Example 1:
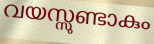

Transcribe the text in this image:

വയസ്സുണ്ടാകും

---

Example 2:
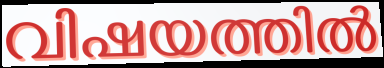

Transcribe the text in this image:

വിഷയത്തിൽ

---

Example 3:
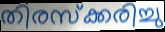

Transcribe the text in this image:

തിരസ്ക്കരിച്ചു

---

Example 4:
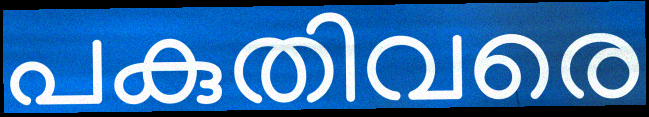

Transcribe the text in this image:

പകുതിവരെ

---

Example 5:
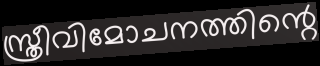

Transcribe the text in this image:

സ്ത്രീവിമോചനത്തിന്റെ